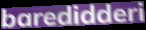
baredidderi